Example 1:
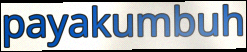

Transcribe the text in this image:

payakumbuh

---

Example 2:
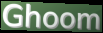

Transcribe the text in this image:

Ghoom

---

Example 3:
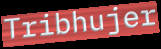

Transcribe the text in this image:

Tribhujer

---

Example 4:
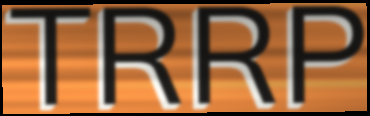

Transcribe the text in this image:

TRRP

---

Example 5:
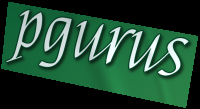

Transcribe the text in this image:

pgurus